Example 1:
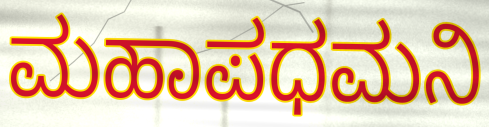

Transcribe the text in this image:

ಮಹಾಪಧಮನಿ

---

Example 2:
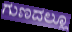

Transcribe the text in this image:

ಗುಣದಲ್ಲೂ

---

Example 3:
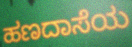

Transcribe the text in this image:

ಹಣದಾಸೆಯ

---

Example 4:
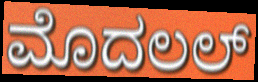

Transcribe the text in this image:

ಮೊದಲಲ್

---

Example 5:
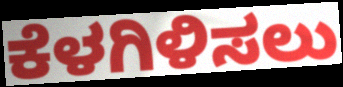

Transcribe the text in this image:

ಕೆಳಗಿಳಿಸಲು